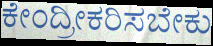
ಕೇಂದ್ರೀಕರಿಸಬೇಕು